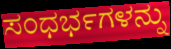
ಸಂಧರ್ಭಗಳನ್ನು